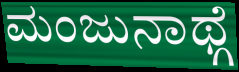
ಮಂಜುನಾಥ್ಗೆ